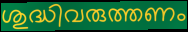
ശുദ്ധിവരുത്തണം